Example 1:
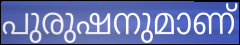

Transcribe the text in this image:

പുരുഷനുമാണ്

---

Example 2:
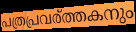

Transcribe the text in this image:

പത്രപ്രവര്ത്തകനും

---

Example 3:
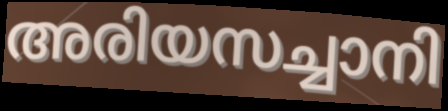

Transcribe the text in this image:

അരിയസച്ചാനി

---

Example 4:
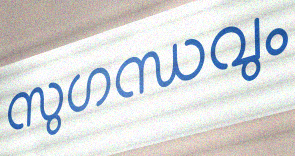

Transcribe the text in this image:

സുഗന്ധവും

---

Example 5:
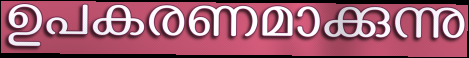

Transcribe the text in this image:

ഉപകരണമാക്കുന്നു